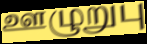
ஊழுறுபு